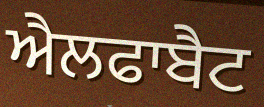
ਐਲਫਾਬੈਟ